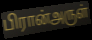
பிரான்அருள்